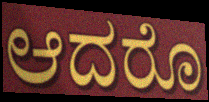
ಆದರೊ